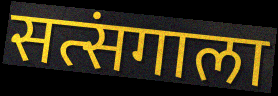
सत्संगाला